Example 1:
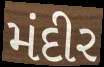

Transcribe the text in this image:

મંદીર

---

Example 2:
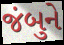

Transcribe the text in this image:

જંબુને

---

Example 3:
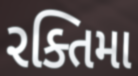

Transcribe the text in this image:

રક્તિમા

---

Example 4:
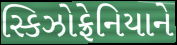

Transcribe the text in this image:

સ્કિઝોફ્રેનિયાને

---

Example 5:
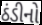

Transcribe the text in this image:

ઠંડીનો